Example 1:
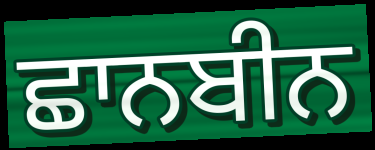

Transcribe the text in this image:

ਛਾਨਬੀਨ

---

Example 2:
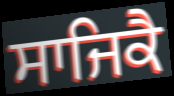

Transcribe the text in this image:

ਸਾਜਿਕੈ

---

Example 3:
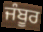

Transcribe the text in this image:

ਜੰਬੂਰ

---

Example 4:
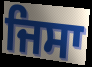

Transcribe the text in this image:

ਜਿਸਾ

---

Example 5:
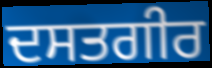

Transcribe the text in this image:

ਦਸਤਗੀਰ